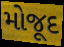
મોજૂદ